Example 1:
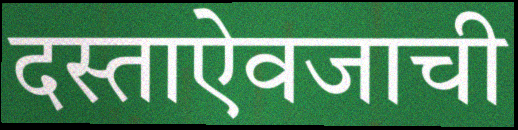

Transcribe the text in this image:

दस्ताऐवजाची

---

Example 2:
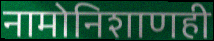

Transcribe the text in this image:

नामोनिशाणही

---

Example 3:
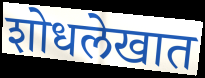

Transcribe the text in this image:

शोधलेखात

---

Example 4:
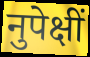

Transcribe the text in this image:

नुपेक्षीं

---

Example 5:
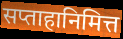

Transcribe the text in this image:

सप्ताहानिमित्त